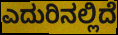
ಎದುರಿನಲ್ಲಿದೆ